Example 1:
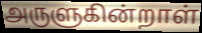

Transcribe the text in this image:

அருளுகின்றாள்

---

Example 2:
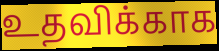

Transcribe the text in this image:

உதவிக்காக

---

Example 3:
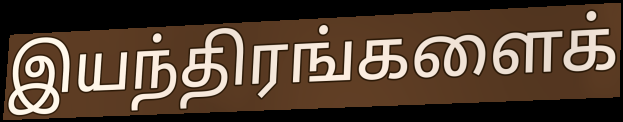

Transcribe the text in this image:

இயந்திரங்களைக்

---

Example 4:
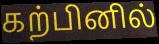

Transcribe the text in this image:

கற்பினில்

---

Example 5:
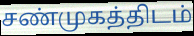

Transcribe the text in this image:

சண்முகத்திடம்